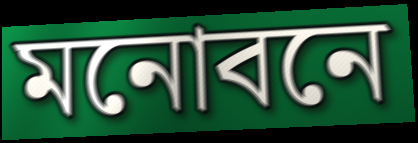
মনোবনে